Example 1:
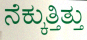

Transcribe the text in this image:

ನೆಕ್ಕುತ್ತಿತ್ತು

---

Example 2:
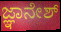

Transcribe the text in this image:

ಜ್ಞಾನೇಶ್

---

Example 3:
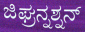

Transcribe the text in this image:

ಜಿಘ್ರನ್ನಶ್ನನ್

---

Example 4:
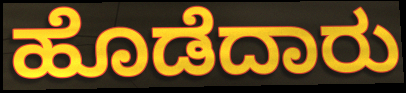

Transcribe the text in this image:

ಹೊಡೆದಾರು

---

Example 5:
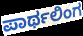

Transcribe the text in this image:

ಪಾರ್ಥಲಿಂಗ